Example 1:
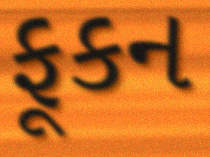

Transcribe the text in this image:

ફૂકન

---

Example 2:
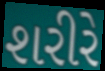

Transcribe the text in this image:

શરીરે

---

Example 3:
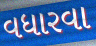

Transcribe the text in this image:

વધારવા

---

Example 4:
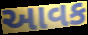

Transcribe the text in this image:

આવક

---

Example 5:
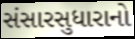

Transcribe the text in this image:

સંસારસુધારાનો